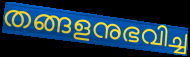
തങ്ങളനുഭവിച്ച